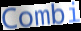
Combi